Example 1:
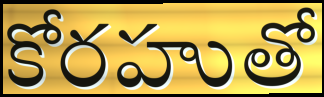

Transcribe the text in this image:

కోరహుతో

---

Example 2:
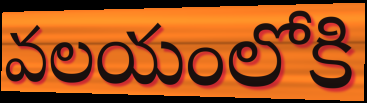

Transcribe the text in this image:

వలయంలోకి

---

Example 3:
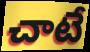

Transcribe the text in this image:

చాటే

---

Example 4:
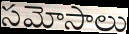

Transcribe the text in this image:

సమోసాలు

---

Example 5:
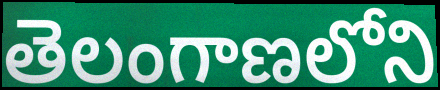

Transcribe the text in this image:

తెలంగాణలోని